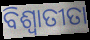
ବିଶ୍ଵାତୀତା